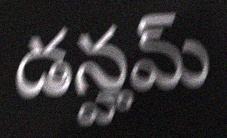
డన్హమ్